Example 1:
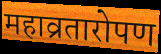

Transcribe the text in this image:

महाव्रतारोपण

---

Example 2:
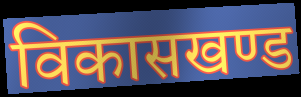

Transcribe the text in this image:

विकासखण्ड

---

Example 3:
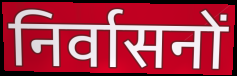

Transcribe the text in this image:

निर्वासनों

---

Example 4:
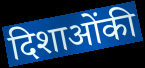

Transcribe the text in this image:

दिशाओंकी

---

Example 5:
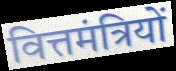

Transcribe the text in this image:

वित्तमंत्रियों